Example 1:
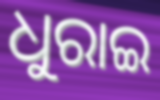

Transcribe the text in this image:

ଧୁରାଇ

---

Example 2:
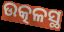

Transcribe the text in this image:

ଉତ୍କଳସ୍ଥ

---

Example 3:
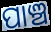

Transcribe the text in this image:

ପାଞ୍ଚ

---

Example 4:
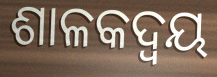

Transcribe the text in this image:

ଶାଳକଦ୍ୱୟ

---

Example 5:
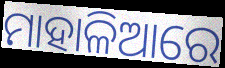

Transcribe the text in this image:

ମାହାଳିଆରେ